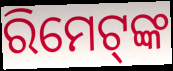
ରିମେଟ୍‍ଙ୍କ